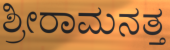
ಶ್ರೀರಾಮನತ್ತ